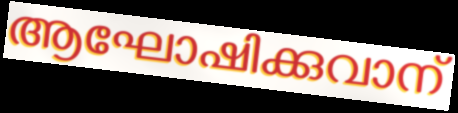
ആഘോഷിക്കുവാന്